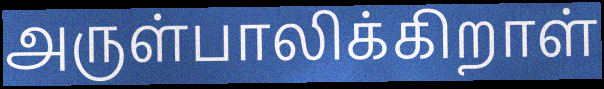
அருள்பாலிக்கிறாள்